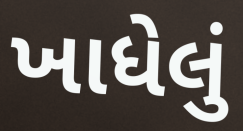
ખાધેલું